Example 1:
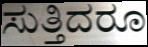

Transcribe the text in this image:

ಸುತ್ತಿದರೂ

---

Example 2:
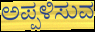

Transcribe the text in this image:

ಅಪ್ಪಳಿಸುವ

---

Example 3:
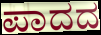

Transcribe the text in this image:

ಪಾದದ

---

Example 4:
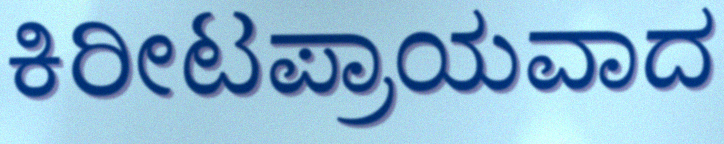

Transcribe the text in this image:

ಕಿರೀಟಪ್ರಾಯವಾದ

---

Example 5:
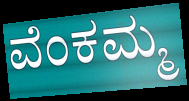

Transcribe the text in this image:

ವೆಂಕಮ್ಮ